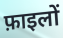
फ़ाइलों